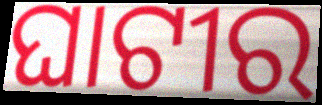
ଘାଟୀର